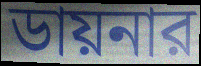
ডায়নার